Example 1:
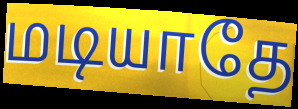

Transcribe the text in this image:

மடியாதே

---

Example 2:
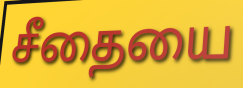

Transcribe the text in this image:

சீதையை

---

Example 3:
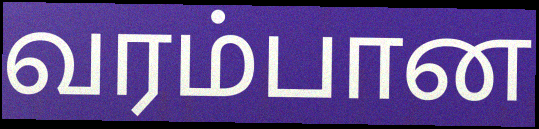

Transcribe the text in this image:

வரம்பான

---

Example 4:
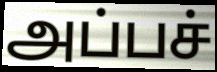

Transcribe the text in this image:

அப்பச்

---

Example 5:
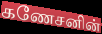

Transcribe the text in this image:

கணேசனின்